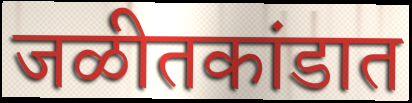
जळीतकांडात